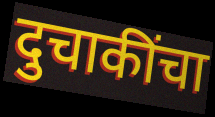
दुचाकींचा